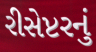
રીસેપ્ટરનું